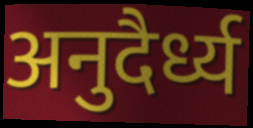
अनुदैर्ध्य